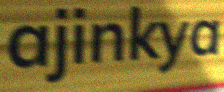
ajinkya